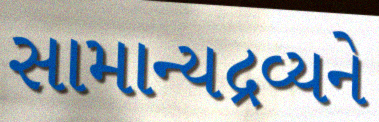
સામાન્યદ્રવ્યને